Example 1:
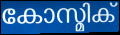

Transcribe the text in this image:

കോസ്മിക്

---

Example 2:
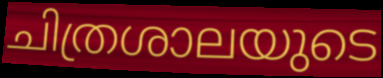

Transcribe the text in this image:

ചിത്രശാലയുടെ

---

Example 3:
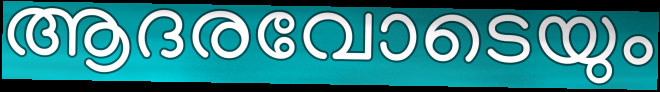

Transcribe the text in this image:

ആദരവോടെയും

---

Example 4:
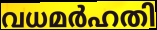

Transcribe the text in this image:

വധമർഹതി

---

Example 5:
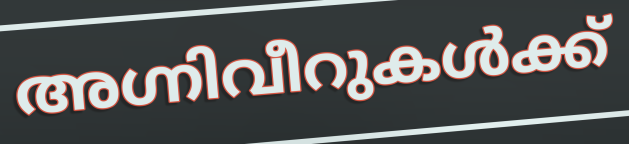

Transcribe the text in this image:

അഗ്നിവീറുകൾക്ക്